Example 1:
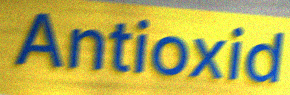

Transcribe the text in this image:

Antioxid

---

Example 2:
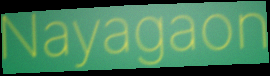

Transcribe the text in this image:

Nayagaon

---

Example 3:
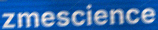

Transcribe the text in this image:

zmescience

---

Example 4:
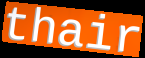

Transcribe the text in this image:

thair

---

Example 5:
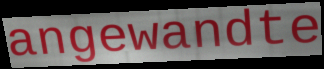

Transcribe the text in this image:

angewandte